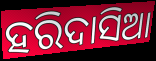
ହରିଦାସିଆ